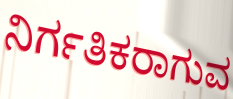
ನಿರ್ಗತಿಕರಾಗುವ